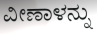
ವೀಣಾಳನ್ನು